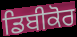
ਡਿਬੀਕੋਰ